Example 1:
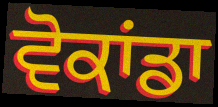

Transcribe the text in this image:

ਵੋਕਾਂਡਾ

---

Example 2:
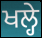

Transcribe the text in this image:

ਖਲ੍ਹੇ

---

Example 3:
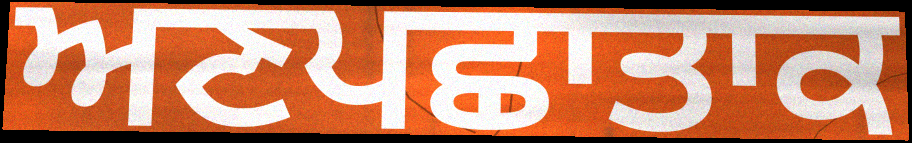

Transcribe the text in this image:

ਅਣਪਛਾਤਾਕ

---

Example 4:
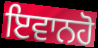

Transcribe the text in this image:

ਇਵਾਨਹੋ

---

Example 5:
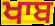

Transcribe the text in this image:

ਖਾਬ